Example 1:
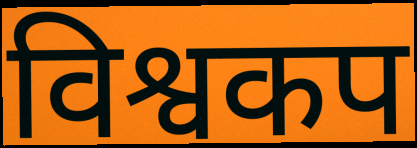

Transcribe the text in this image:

विश्वकप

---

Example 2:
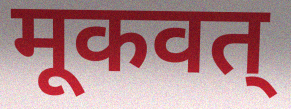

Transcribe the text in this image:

मूकवत्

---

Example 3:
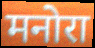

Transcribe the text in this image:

मनोरा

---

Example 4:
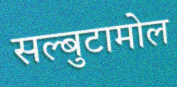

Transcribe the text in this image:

सल्बुटामोल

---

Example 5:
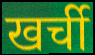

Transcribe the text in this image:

खर्ची